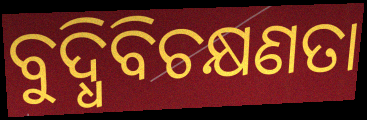
ବୁଦ୍ଧିବିଚକ୍ଷଣତା